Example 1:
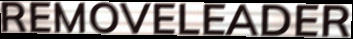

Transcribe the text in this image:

REMOVELEADER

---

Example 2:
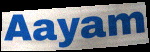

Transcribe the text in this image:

Aayam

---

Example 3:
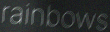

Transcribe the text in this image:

rainbows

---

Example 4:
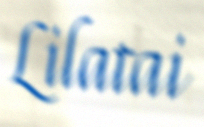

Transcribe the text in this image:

Lilatai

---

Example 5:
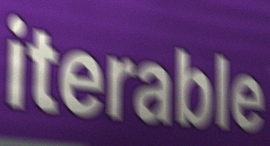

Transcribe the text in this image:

iterable